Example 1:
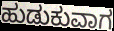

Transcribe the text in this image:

ಹುಡುಕುವಾಗ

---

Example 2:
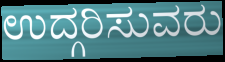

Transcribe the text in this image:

ಉದ್ಗರಿಸುವರು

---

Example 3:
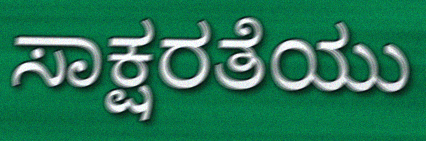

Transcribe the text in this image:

ಸಾಕ್ಷರತೆಯು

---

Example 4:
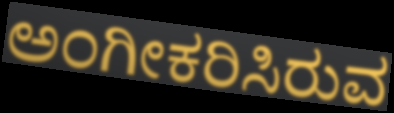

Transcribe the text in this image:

ಅಂಗೀಕರಿಸಿರುವ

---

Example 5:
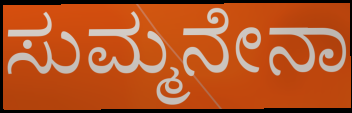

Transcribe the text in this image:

ಸುಮ್ಮನೇನಾ